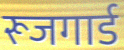
रूजगार्ड